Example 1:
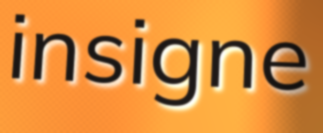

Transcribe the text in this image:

insigne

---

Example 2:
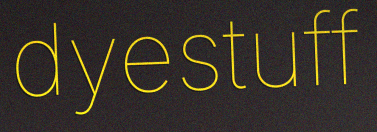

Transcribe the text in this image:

dyestuff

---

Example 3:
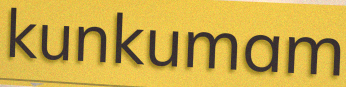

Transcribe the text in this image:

kunkumam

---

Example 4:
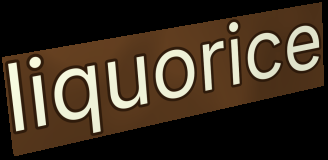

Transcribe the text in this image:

liquorice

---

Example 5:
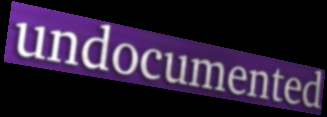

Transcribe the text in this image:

undocumented